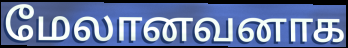
மேலானவனாக